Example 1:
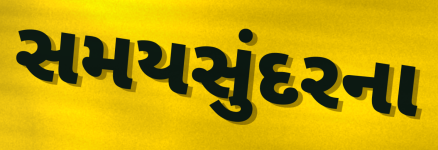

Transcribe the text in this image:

સમયસુંદરના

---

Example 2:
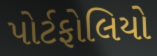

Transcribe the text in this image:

પોર્ટફોલિયો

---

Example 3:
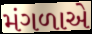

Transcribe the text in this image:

મંગળાએ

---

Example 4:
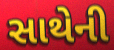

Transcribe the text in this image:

સાથેની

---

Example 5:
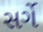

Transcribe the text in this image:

સર્ગે